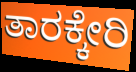
ತಾರಕ್ಕೇರಿ